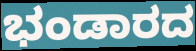
ಭಂಡಾರದ